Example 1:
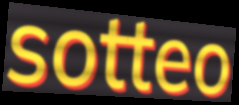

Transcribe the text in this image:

sotteo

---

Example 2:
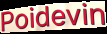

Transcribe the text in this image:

Poidevin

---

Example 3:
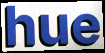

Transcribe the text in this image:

hue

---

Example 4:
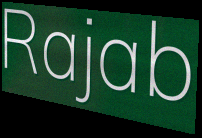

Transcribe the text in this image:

Rajab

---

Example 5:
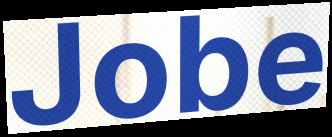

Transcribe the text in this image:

Jobe